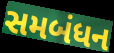
સમબંધન